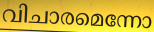
വിചാരമെന്നോ